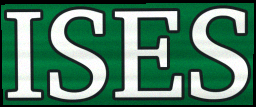
ISES